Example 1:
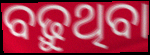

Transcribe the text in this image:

ବଢ଼ୁଥିବା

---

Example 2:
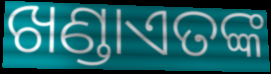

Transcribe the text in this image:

ଖଣ୍ଡାଏତଙ୍କ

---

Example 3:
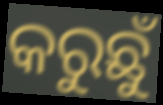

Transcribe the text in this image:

କରୁଛୁଁ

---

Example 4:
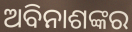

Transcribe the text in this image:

ଅବିନାଶଙ୍କର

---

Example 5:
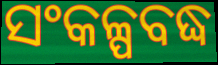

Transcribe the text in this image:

ସଂକଳ୍ପବଦ୍ଧ